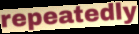
repeatedly